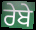
ਰੇਬੇ